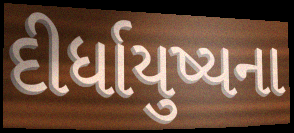
દીર્ધાયુષ્યના